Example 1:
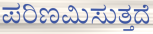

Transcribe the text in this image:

ಪರಿಣಮಿಸುತ್ತದೆ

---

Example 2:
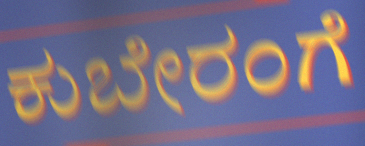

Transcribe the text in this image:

ಕುಬೇರಂಗೆ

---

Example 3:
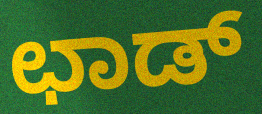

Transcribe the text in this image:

ಛಾಡ್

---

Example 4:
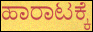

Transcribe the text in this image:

ಹಾರಾಟಕ್ಕೆ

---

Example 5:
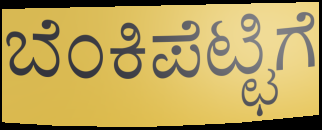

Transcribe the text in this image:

ಬೆಂಕಿಪೆಟ್ಟಿಗೆ